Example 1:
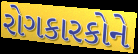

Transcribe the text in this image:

રોગકારકોને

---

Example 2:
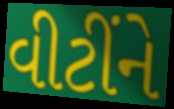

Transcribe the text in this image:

વીટીંને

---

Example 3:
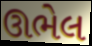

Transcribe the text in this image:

ઊભેલ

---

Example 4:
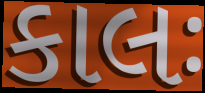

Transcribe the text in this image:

કાલઃ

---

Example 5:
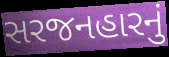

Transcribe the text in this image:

સરજનહારનું